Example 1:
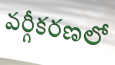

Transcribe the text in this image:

వర్గీకరణలో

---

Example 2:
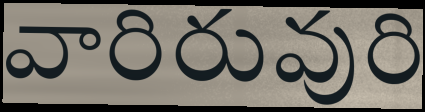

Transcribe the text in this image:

వారిరువురి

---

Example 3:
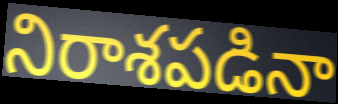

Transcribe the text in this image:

నిరాశపడినా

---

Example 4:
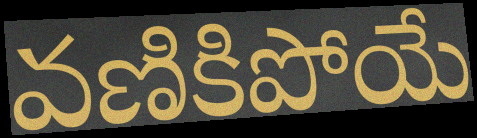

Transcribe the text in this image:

వణికిపోయే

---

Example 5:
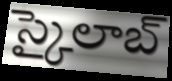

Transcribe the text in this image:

స్కైలాబ్